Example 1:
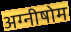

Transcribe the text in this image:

अग्नीषोम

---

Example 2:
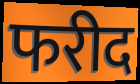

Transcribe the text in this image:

फरीद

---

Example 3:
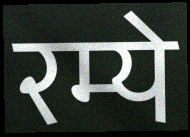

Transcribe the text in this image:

रम्ये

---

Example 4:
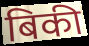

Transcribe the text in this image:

बिकी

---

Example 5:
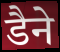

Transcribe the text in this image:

डैने